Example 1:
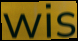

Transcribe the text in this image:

wis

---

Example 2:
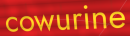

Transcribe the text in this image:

cowurine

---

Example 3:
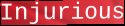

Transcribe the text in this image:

Injurious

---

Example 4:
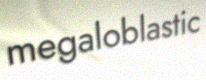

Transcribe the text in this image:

megaloblastic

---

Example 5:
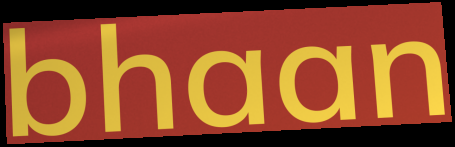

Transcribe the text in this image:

bhaan